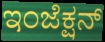
ಇಂಜೆಕ್ಷನ್